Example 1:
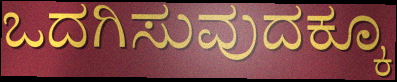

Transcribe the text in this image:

ಒದಗಿಸುವುದಕ್ಕೂ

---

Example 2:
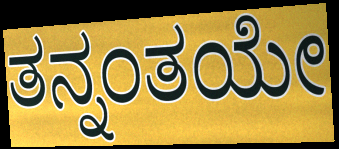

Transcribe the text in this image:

ತನ್ನಂತಯೇ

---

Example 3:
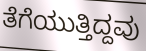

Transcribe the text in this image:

ತೆಗೆಯುತ್ತಿದ್ದವು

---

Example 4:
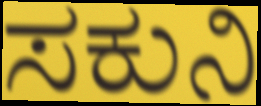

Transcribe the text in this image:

ಸಕುನಿ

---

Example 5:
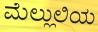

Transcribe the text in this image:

ಮೆಲ್ಲುಲಿಯ